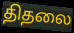
திதலை